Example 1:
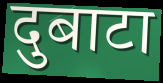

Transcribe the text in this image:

दुबाटा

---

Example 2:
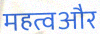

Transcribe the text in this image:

महत्वऔर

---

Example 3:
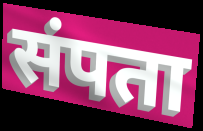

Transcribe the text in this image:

संपता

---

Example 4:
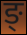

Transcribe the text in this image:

ङ्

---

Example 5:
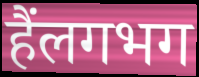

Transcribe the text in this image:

हैंलगभग